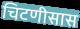
चिटणीसास